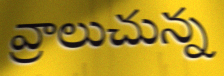
వ్రాలుచున్న